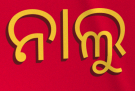
ନାଲୁ